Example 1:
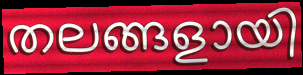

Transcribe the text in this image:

തലങ്ങളായി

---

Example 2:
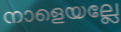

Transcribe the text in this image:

നാളെയല്ലേ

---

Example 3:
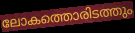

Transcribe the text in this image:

ലോകത്തൊരിടത്തും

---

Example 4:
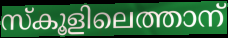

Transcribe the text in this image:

സ്കൂളിലെത്താന്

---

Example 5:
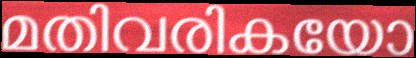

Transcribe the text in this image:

മതിവരികയോ